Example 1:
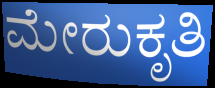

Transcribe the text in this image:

ಮೇರುಕೃತಿ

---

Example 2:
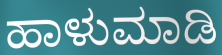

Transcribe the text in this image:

ಹಾಳುಮಾಡಿ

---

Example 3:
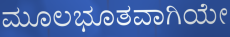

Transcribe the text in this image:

ಮೂಲಭೂತವಾಗಿಯೇ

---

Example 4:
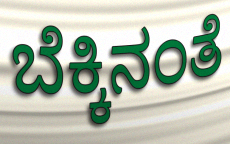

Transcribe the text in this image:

ಬೆಕ್ಕಿನಂತೆ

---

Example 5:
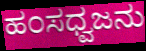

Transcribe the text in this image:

ಹಂಸಧ್ವಜನು